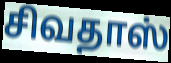
சிவதாஸ்